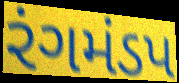
રંગમંડપ